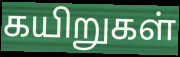
கயிறுகள்